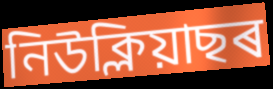
নিউক্লিয়াছৰ